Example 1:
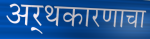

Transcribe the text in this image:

अर्थकारणाचा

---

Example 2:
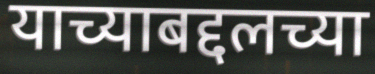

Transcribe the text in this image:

याच्याबद्दलच्या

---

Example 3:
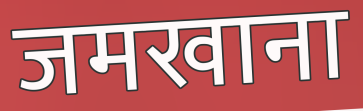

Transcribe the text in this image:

जमखाना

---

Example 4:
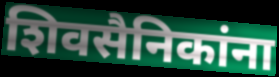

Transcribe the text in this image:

शिवसैनिकांना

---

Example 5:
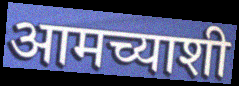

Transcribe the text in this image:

आमच्याशी